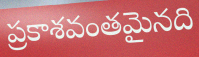
ప్రకాశవంతమైనది